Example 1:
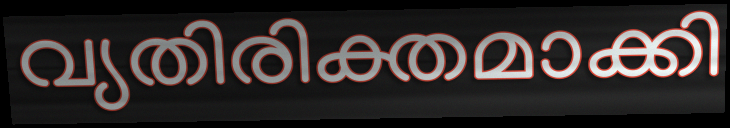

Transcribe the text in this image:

വ്യതിരിക്തമാക്കി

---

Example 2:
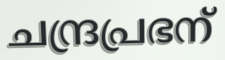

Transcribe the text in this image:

ചന്ദ്രപ്രഭന്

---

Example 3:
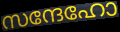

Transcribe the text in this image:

സന്ദേഹോ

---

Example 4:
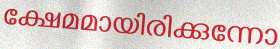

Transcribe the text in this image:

ക്ഷേമമായിരിക്കുന്നോ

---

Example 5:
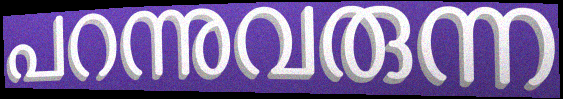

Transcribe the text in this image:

പറന്നുവരുന്ന